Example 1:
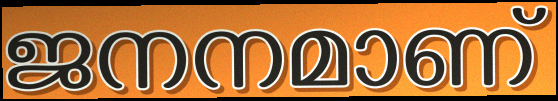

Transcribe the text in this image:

ജനനമാണ്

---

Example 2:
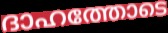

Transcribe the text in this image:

ദാഹത്തോടെ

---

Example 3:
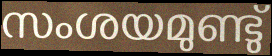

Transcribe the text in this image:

സംശയമുണ്ടു്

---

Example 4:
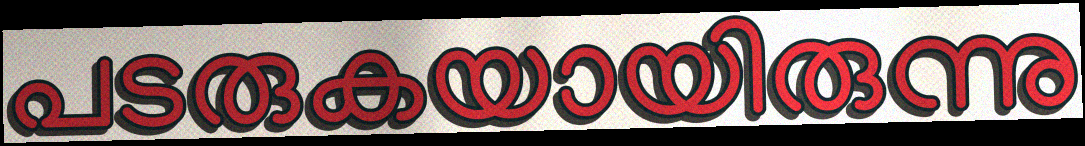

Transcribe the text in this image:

പടരുകയായിരുന്നു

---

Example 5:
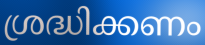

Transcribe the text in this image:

ശ്രദ്ധിക്കണം